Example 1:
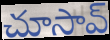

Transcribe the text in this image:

చూసావ్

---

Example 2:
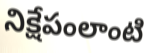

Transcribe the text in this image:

నిక్షేపంలాంటి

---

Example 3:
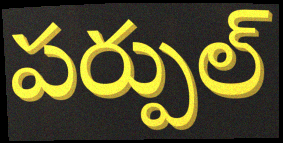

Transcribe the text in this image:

పర్పుల్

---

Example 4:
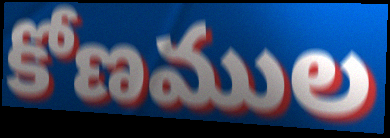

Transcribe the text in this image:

కోణముల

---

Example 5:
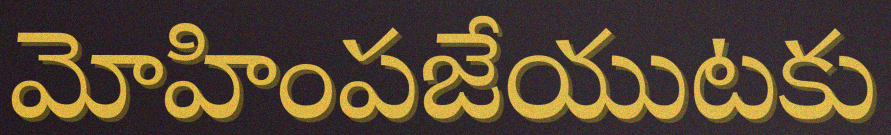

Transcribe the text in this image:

మోహింపజేయుటకు